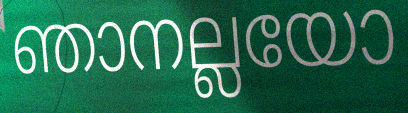
ഞാനല്ലയോ